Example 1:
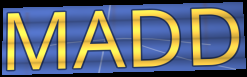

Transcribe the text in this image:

MADD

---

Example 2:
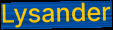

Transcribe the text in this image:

Lysander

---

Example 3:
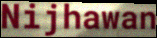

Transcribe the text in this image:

Nijhawan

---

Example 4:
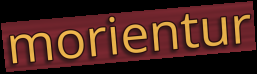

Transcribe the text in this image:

morientur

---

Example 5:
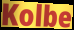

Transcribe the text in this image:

Kolbe